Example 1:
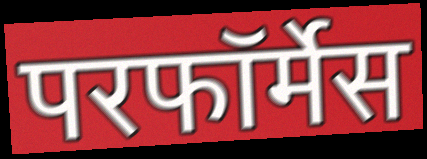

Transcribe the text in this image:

परफॉर्मेस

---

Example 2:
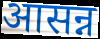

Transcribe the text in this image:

आसन्न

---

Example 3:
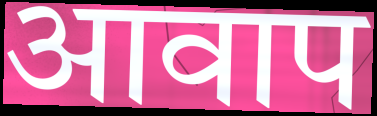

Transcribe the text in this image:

आवाप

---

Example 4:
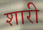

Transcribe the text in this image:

शारी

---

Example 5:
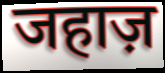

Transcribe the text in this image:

जहाज़